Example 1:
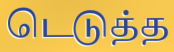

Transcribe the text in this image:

டெடுத்த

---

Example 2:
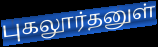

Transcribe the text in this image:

புகலூர்தனுள்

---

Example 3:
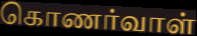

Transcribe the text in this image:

கொணர்வாள்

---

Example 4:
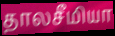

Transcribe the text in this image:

தாலசீமியா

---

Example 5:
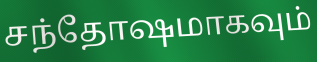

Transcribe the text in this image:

சந்தோஷமாகவும்